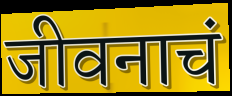
जीवनाचं